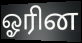
ஓரின